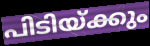
പിടിയ്ക്കും